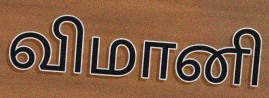
விமானி